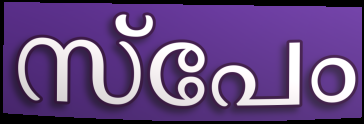
സ്പേം